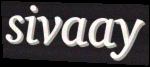
sivaay